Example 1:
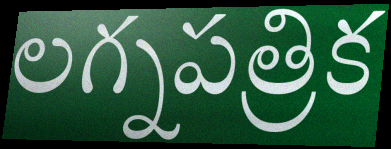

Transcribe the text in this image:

లగ్నపత్రిక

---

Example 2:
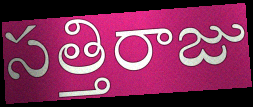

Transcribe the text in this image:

సత్తిరాజు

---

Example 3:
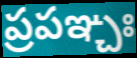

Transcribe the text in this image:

ప్రపఞ్చః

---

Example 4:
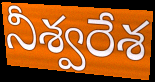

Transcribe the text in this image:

నీశ్వరేశ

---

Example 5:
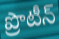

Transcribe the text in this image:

ప్రొటీన్